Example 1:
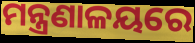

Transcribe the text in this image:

ମନ୍ତ୍ରଣାଳୟରେ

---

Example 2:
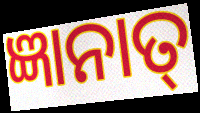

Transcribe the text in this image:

ଜ୍ଞାନାତ୍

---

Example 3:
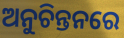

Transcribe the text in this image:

ଅନୁଚିନ୍ତନରେ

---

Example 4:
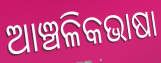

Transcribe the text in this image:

ଆଞ୍ଚଳିକଭାଷା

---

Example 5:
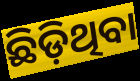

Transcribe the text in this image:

ଛିଡ଼ିଥିବା